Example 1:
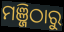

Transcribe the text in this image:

ମଞ୍ଜିଠାରୁ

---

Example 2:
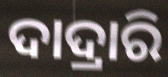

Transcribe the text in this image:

ଦାଦ୍ରାରି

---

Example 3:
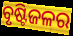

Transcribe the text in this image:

ବୃଷ୍ଟିଜଳର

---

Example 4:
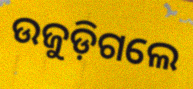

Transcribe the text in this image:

ଉଜୁଡ଼ିଗଲେ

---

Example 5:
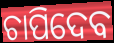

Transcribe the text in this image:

ଚାପିଦେବ